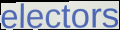
electors